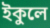
ইকুলে